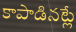
కాపాడినట్లే